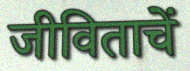
जीविताचें